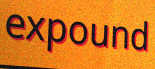
expound